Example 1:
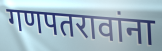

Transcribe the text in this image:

गणपतरावांना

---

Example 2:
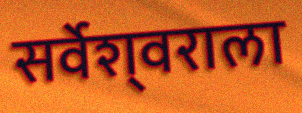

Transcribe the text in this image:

सर्वेश्वराला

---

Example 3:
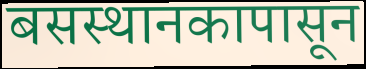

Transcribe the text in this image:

बसस्थानकापासून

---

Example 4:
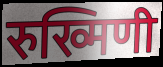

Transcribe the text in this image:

रुख्मिणी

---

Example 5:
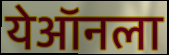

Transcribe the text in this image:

येऑनला